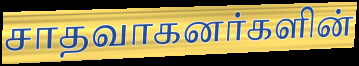
சாதவாகனர்களின்